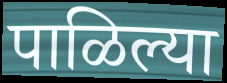
पाळिल्या